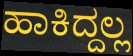
ಹಾಕಿದ್ದಲ್ಲ